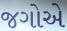
જગોએ